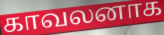
காவலனாக